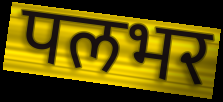
पलभर